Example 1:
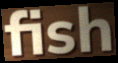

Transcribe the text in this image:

fish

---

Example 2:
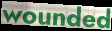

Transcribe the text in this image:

wounded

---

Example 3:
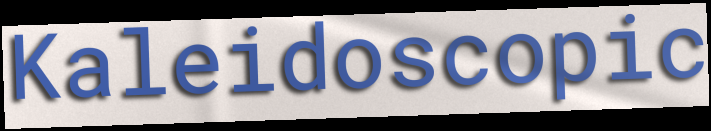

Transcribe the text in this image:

Kaleidoscopic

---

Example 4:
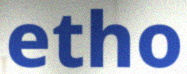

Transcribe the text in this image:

etho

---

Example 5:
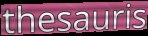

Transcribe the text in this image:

thesauris